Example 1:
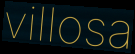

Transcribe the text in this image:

villosa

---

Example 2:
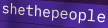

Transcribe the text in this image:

shethepeople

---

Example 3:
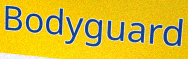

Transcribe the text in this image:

Bodyguard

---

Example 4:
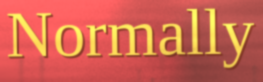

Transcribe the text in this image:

Normally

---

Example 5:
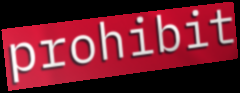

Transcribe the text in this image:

prohibit